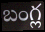
బంగ్ల